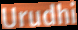
Urudhi